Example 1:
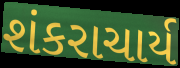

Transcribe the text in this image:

શંકરાચાર્ય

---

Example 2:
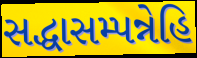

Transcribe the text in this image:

સદ્ધાસમ્પન્નેહિ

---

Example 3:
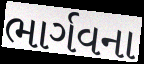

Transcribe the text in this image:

ભાર્ગવના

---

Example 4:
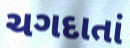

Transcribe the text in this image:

ચગદાતાં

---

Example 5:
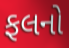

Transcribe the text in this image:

ફલનો